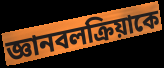
জ্ঞানবলক্রিয়াকে